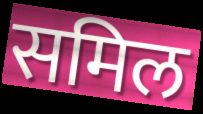
समिल